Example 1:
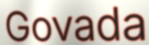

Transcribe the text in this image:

Govada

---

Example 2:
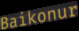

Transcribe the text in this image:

Baikonur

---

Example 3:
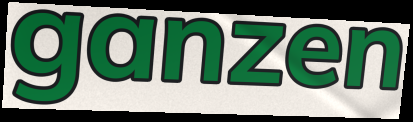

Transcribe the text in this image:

ganzen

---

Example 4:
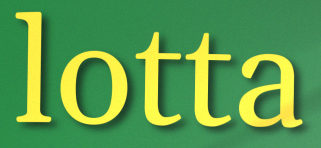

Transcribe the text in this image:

lotta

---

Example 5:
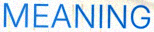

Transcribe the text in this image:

MEANING